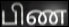
பிண